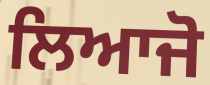
ਲਿਆਜੋ